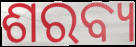
ଶରବ୍ୟ